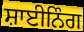
ਸ਼ਾਈਨਿੰਗ